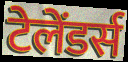
टेलेंडर्स